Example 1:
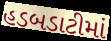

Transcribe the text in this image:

હડબડાટીમાં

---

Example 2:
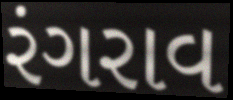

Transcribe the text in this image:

રંગરાવ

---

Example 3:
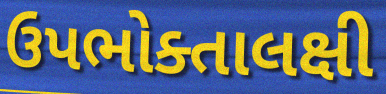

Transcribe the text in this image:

ઉપભોક્તાલક્ષી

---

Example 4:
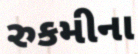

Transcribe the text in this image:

રુકમીના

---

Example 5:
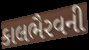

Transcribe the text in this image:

કાલભૈરવની